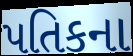
પતિકના